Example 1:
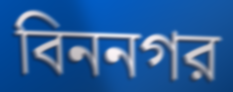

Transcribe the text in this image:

বিননগর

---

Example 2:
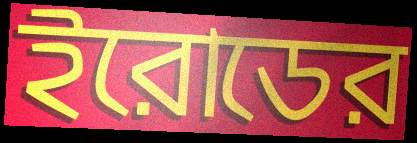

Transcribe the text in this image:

ইরোডের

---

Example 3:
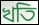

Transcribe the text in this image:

খতি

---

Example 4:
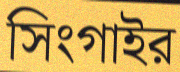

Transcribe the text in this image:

সিংগাইর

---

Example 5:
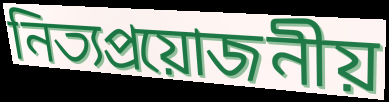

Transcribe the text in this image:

নিত্যপ্রয়োজনীয়